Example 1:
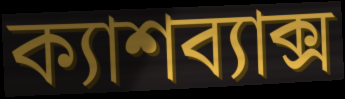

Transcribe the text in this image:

ক্যাশব্যাক্স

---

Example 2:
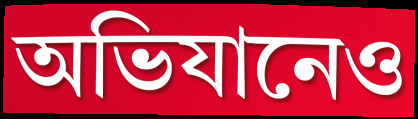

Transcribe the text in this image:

অভিযানেও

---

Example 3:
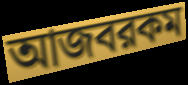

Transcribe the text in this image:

আজবরকম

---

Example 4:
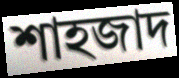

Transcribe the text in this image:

শাহজাদ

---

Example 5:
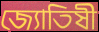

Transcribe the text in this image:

জ্যোতিষী